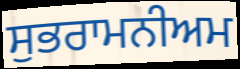
ਸੁਭਰਾਮਨੀਅਮ